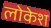
लोकेश